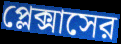
প্লেক্সাসের